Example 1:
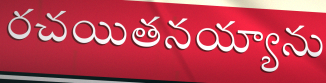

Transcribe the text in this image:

రచయితనయ్యాను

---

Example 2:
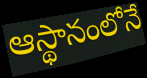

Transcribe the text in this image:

ఆస్థానంలోనే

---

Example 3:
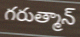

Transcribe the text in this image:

గరుత్మాన్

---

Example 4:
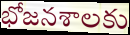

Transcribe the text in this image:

భోజనశాలకు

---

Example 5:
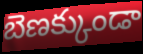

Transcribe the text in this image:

బెణక్కుండా